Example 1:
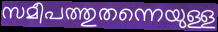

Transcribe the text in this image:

സമീപത്തുതന്നെയുള്ള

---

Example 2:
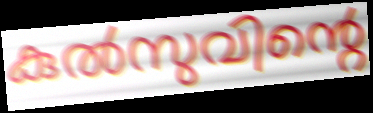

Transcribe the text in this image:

കുൽസുവിന്റെ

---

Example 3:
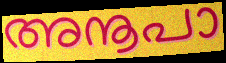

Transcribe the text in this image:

അനൂപാ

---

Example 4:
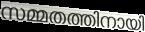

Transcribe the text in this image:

സമ്മതത്തിനായി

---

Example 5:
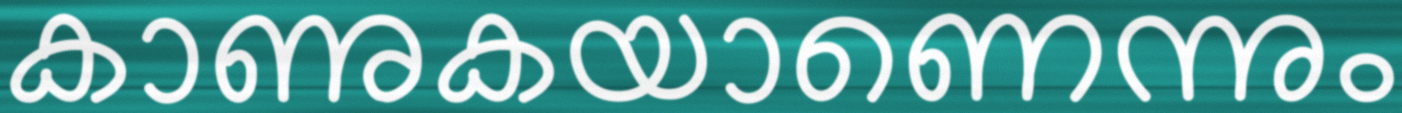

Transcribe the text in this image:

കാണുകയാണെന്നും